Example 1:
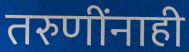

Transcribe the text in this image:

तरुणींनाही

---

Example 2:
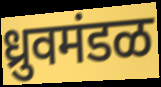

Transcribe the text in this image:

ध्रुवमंडळ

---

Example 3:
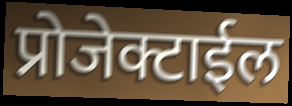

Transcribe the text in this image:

प्रोजेक्टाईल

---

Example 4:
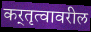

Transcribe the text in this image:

कर्तृत्वावरील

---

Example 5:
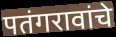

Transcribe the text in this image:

पतंगरावांचे